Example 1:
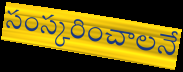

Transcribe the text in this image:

సంస్కరించాలనే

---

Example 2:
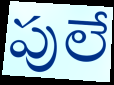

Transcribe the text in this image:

పులే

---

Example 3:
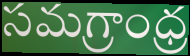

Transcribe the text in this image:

సమగ్రాంధ్ర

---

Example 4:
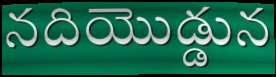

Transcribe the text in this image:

నదియొడ్డున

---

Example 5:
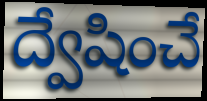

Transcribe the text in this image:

ద్వేషించే